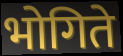
भोगिते